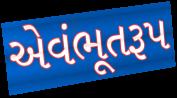
એવંભૂતરૂપ